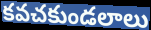
కవచకుండలాలు